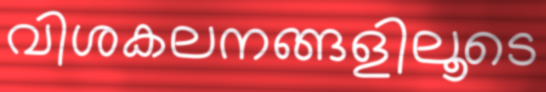
വിശകലനങ്ങളിലൂടെ